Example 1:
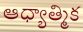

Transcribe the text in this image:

ఆధ్యాత్మిక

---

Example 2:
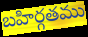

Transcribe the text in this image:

బహిర్గతము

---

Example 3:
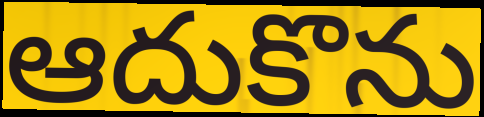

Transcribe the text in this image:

ఆదుకొను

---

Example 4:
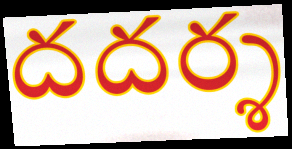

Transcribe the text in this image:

దదర్శ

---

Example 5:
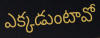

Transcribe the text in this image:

ఎక్కడుంటావో